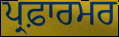
ਪ੍ਰਫ਼ਾਰਮਰ